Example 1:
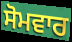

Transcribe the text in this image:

ਸੋਮਵਾਰ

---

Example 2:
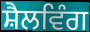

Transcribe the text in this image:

ਸ਼ੈਲਵਿੰਗ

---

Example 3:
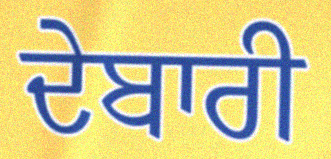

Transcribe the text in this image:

ਦੇਬਾਰੀ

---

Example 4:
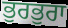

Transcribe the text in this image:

ਭੁਰਭੁਰਾ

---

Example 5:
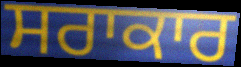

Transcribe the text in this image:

ਸਰਾਕਾਰ